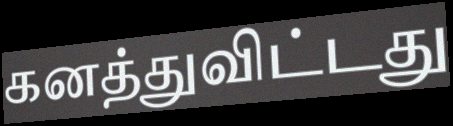
கனத்துவிட்டது